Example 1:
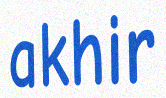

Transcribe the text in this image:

akhir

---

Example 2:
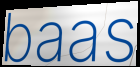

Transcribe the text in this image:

baas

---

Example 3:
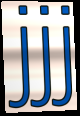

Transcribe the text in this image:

jjj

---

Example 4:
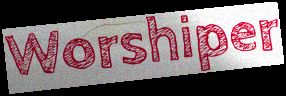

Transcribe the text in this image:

Worshiper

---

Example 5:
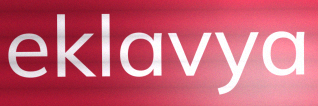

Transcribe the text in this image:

eklavya